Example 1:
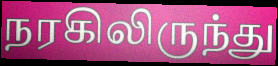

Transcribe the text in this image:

நரகிலிருந்து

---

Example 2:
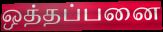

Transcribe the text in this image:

ஒத்தப்பனை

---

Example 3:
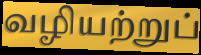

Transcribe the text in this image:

வழியற்றுப்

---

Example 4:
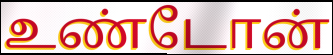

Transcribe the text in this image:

உண்டோன்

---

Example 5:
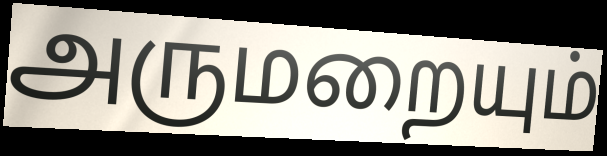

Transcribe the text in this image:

அருமறையும்